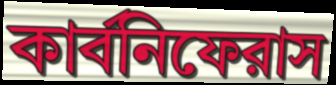
কার্বনিফেরাস